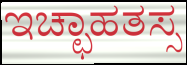
ಇಚ್ಛಾಹತಸ್ಸ